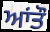
ਆਂਤੌ